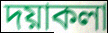
দয়াকলা